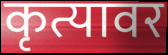
कृत्यावर